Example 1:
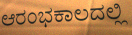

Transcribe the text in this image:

ಆರಂಭಕಾಲದಲ್ಲಿ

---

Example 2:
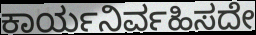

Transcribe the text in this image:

ಕಾರ್ಯನಿರ್ವಹಿಸದೇ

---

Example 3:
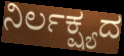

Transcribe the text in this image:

ನಿರ್ಲಕ್ಷ್ಯದ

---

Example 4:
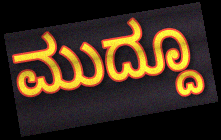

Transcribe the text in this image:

ಮುದ್ದೂ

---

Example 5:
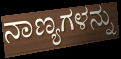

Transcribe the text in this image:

ನಾಣ್ಯಗಳನ್ನು